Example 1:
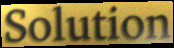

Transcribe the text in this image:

Solution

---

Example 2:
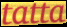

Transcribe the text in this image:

tatta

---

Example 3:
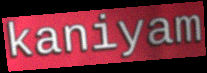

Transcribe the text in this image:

kaniyam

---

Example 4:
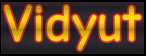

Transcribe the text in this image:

Vidyut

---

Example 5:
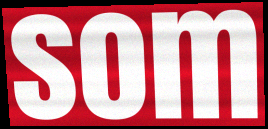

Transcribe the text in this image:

som